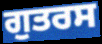
ਗੁਤਰਸ